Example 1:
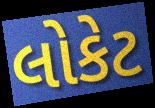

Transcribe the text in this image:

લોકેટ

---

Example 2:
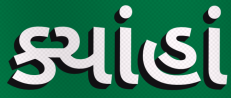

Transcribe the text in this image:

ક્યાંહાં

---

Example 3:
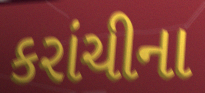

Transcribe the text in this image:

કરાંચીના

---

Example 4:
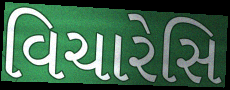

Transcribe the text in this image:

વિચારેસિ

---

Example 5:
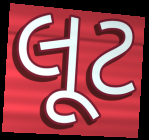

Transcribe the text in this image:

લૂટ